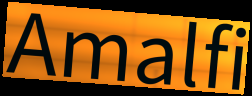
Amalfi